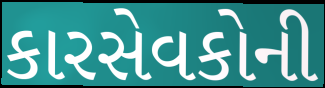
કારસેવકોની